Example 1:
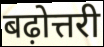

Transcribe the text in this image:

बढ़ोत्तरी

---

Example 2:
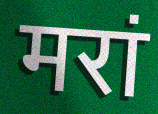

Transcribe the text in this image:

मरां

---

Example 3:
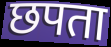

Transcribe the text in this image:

छपता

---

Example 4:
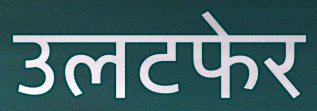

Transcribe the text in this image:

उलटफेर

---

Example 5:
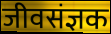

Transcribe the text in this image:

जीवसंज्ञक